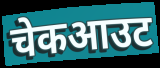
चेकआउट